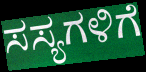
ಸಸ್ಯಗಳಿಗೆ